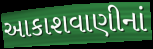
આકાશવાણીનાં